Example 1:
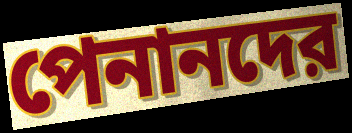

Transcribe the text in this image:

পেনানদের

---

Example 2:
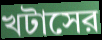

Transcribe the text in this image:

খটাসের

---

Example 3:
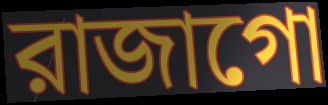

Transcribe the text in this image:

রাজাগো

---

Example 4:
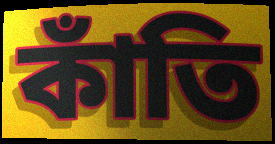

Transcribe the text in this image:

কাঁতি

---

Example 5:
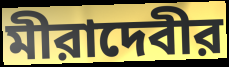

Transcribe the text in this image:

মীরাদেবীর